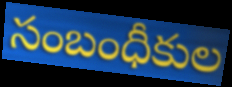
సంబంధీకుల